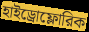
হাইড্রোফ্লোরিক